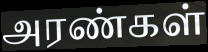
அரண்கள்